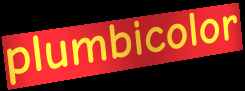
plumbicolor